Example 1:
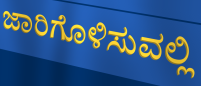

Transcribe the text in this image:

ಜಾರಿಗೊಳಿಸುವಲ್ಲಿ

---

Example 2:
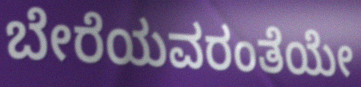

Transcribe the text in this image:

ಬೇರೆಯವರಂತೆಯೇ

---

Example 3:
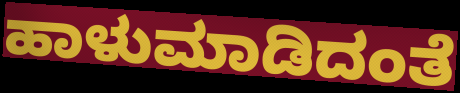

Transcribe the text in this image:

ಹಾಳುಮಾಡಿದಂತೆ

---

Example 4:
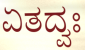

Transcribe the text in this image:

ಏತದ್ವಃ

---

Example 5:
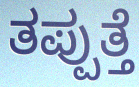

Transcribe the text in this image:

ತಪ್ಪುತ್ತೆ